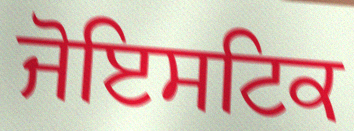
ਜੋਇਸਟਿਕ